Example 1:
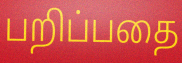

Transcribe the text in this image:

பறிப்பதை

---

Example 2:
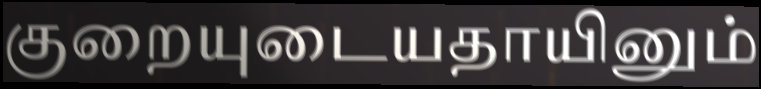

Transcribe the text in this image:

குறையுடையதாயினும்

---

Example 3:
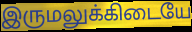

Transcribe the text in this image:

இருமலுக்கிடையே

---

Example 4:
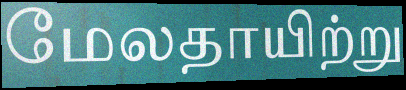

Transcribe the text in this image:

மேலதாயிற்று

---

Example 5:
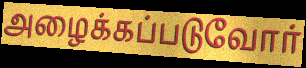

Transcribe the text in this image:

அழைக்கப்படுவோர்